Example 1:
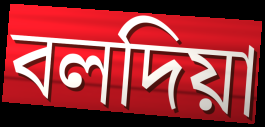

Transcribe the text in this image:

বলদিয়া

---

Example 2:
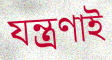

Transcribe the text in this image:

যন্ত্রণাই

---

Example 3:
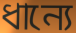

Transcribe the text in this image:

ধান্যে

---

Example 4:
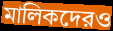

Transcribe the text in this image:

মালিকদেরও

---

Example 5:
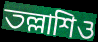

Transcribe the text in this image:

তল্লাশিও